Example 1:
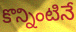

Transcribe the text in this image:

కొన్నింటినే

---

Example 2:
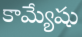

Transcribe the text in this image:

కామ్యేషు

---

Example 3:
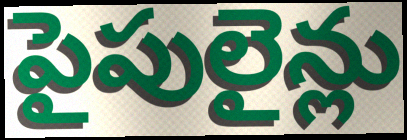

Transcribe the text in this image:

పైపులైన్లు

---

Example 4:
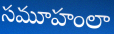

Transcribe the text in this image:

సమూహంలా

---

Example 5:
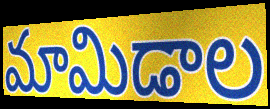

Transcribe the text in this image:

మామిడాల